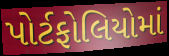
પોર્ટફોલિયોમાં